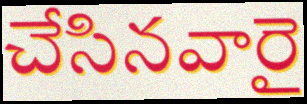
చేసినవారై